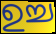
ഉച്ച